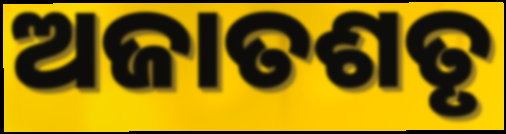
ଅଜାତଶତୃ